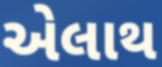
એલાથ